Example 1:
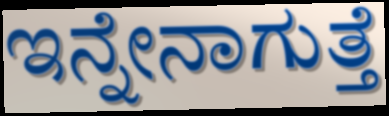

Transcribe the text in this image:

ಇನ್ನೇನಾಗುತ್ತೆ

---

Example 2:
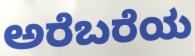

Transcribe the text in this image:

ಅರೆಬರೆಯ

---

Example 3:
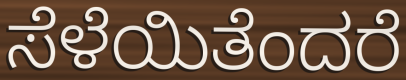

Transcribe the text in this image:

ಸೆಳೆಯಿತೆಂದರೆ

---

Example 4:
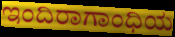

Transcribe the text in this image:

ಇಂದಿರಾಗಾಂಧಿಯ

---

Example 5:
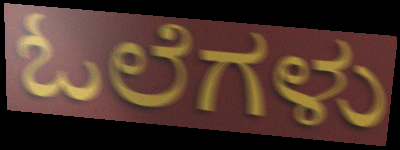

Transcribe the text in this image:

ಓಲೆಗಳು